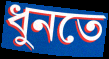
ধুনতে